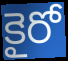
కైరో